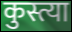
कुस्त्या